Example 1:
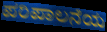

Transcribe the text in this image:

ಪರಿಪಾಲನೆಯ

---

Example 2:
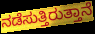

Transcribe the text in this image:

ನಡೆಸುತ್ತಿರುತ್ತಾನೆ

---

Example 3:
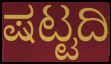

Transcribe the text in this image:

ಷಟ್ಟದಿ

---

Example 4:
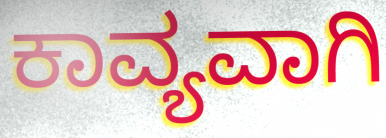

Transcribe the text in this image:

ಕಾವ್ಯವಾಗಿ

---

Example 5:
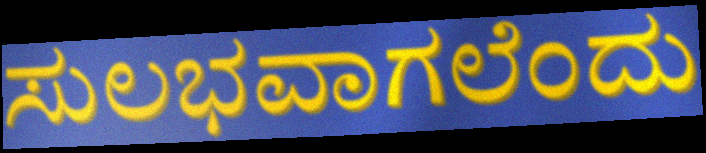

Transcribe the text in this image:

ಸುಲಭವಾಗಲೆಂದು